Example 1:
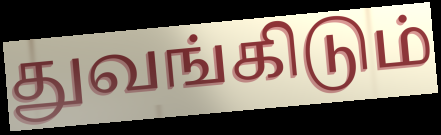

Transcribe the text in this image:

துவங்கிடும்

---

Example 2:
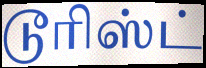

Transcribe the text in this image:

டூரிஸ்ட்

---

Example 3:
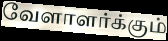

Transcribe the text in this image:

வேளாளர்க்கும்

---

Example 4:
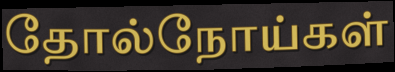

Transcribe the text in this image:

தோல்நோய்கள்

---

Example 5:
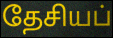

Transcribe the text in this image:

தேசியப்